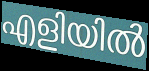
എളിയിൽ